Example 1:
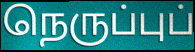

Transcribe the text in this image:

நெருப்புப்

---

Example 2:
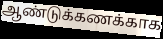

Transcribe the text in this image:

ஆண்டுக்கணக்காக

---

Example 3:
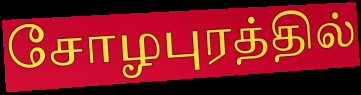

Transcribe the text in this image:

சோழபுரத்தில்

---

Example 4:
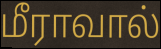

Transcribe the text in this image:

மீராவால்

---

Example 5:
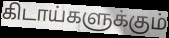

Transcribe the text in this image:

கிடாய்களுக்கும்